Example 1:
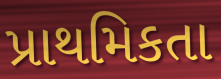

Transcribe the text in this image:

પ્રાથમિકતા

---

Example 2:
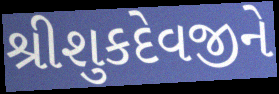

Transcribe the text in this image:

શ્રીશુકદેવજીને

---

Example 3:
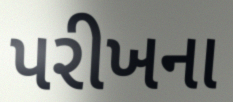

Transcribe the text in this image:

પરીખના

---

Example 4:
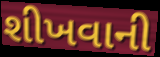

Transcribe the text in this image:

શીખવાની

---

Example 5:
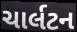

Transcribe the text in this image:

ચાર્લટન